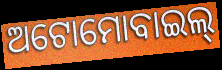
ଅଟୋମୋବାଇଲ୍